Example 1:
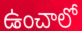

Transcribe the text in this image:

ఉంచాలో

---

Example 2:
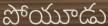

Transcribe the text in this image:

పోయూడు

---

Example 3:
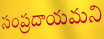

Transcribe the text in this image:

సంప్రదాయమని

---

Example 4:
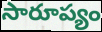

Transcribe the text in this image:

సారూప్యం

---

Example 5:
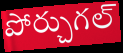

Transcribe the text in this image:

పోర్చుగల్